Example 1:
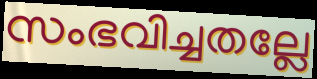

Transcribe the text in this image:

സംഭവിച്ചതല്ലേ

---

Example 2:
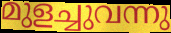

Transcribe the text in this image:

മുളച്ചുവന്നു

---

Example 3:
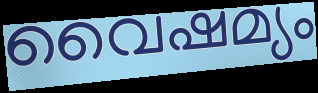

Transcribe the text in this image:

വൈഷമ്യം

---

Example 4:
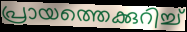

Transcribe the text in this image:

പ്രായത്തെക്കുറിച്ച്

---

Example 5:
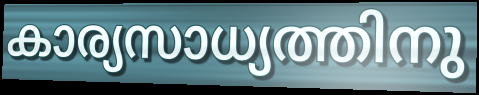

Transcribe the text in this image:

കാര്യസാധ്യത്തിനു